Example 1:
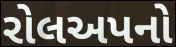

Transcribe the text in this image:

રોલઅપનો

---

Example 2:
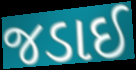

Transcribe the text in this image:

જડાઈ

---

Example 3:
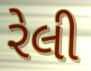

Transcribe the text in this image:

રેલી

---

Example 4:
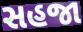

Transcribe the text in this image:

સહજા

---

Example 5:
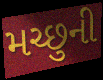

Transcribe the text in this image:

મચ્છુની